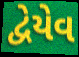
દ્વેયેવ